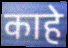
काहे